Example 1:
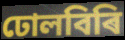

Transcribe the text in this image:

ঢোলবিৰি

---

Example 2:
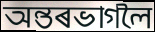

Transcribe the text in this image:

অন্তৰভাগলৈ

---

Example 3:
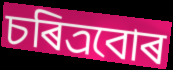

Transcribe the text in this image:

চৰিত্ৰবোৰ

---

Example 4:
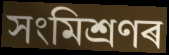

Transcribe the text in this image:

সংমিশ্ৰণৰ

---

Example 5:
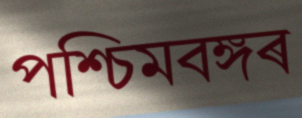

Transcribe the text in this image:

পশ্চিমবঙ্গৰ